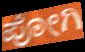
ಪೋಗಿ